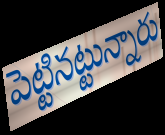
పెట్టినట్టున్నారు